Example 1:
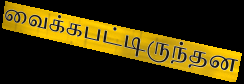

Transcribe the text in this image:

வைக்கபட்டிருந்தன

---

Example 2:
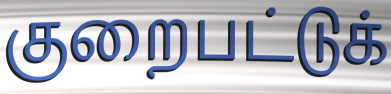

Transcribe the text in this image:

குறைபட்டுக்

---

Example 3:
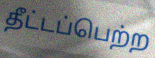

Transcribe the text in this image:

தீட்டப்பெற்ற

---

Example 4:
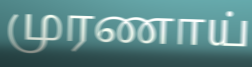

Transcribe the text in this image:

முரணாய்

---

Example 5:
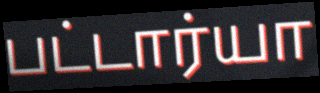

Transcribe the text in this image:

பட்டார்யா